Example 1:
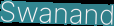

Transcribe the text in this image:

Swanand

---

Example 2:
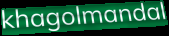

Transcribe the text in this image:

khagolmandal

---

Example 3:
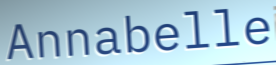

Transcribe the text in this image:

Annabelle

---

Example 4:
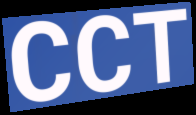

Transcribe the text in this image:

CCT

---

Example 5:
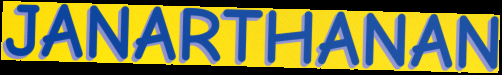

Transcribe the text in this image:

JANARTHANAN